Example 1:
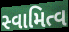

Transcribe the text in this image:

સ્વામિત્વ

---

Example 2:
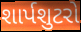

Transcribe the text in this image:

શાર્પશુટરો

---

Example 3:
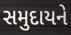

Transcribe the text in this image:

સમુદાયને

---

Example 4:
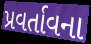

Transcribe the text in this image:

પ્રવર્તાવના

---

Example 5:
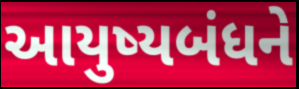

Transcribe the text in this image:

આયુષ્યબંધને